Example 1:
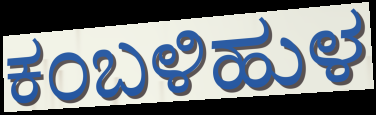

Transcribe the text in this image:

ಕಂಬಳಿಹುಳ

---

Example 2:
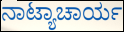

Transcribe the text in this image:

ನಾಟ್ಯಾಚಾರ್ಯ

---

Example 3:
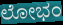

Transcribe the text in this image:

ಲೋಭಂ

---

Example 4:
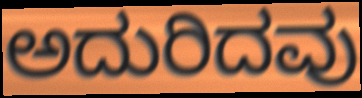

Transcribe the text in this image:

ಅದುರಿದವು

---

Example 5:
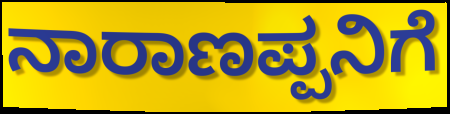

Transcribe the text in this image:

ನಾರಾಣಪ್ಪನಿಗೆ